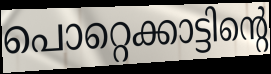
പൊറ്റെക്കാട്ടിന്റെ